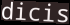
dicis